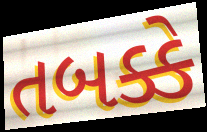
તબક્કે